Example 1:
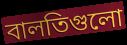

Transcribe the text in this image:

বালতিগুলো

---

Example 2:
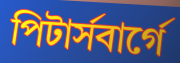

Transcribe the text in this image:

পিটার্সবার্গে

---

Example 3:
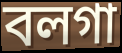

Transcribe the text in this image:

বলগা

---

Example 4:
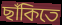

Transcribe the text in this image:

ছাঁকিতে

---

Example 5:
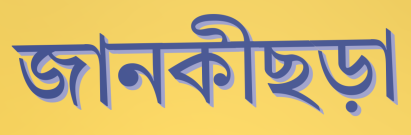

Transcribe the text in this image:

জানকীছড়া